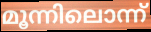
മൂന്നിലൊന്ന്